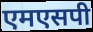
एमएसपी